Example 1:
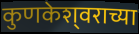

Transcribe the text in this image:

कुणकेश्वराच्या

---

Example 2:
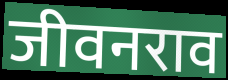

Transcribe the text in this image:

जीवनराव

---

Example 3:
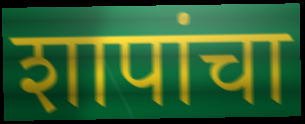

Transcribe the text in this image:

शापांचा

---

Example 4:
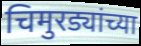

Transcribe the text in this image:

चिमुरड्यांच्या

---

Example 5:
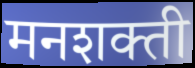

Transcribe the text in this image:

मनशक्ती